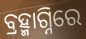
ବ୍ରହ୍ମାଗ୍ନିରେ